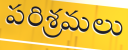
పరిశ్రమలు